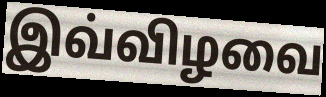
இவ்விழவை